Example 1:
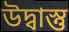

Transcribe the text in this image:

উদ্বাস্তু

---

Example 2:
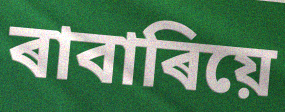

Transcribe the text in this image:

ৰাবাৰিয়ে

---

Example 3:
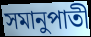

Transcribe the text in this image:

সমানুপাতী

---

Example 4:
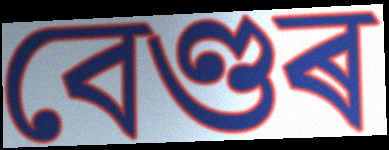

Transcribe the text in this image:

বেণ্ডৰ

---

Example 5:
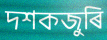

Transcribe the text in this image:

দশকজুৰি